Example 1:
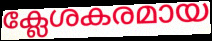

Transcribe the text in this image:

ക്ലേശകരമായ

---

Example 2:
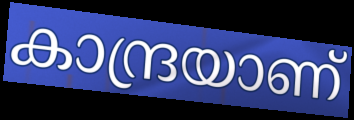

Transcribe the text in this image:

കാന്ദ്രയാണ്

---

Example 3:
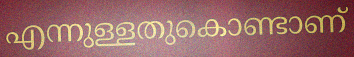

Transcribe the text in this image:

എന്നുള്ളതുകൊണ്ടാണ്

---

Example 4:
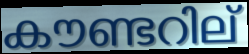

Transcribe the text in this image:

കൗണ്ടറില്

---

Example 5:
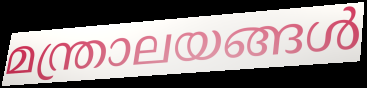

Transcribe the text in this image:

മന്ത്രാലയങ്ങൾ